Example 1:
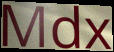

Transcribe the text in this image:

Mdx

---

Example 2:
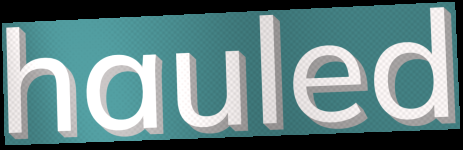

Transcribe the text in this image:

hauled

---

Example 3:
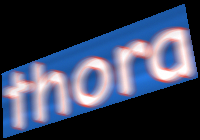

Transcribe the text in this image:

thora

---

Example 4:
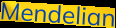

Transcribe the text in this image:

Mendelian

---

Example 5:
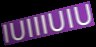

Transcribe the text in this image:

IUIIIUIU